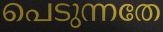
പെടുന്നതേ